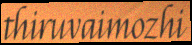
thiruvaimozhi